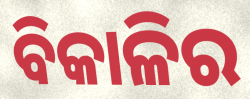
ବିକାଳିର